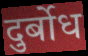
दुर्बोध